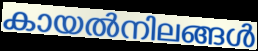
കായൽനിലങ്ങൾ